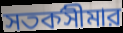
সতর্কসীমার